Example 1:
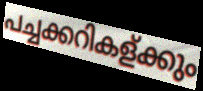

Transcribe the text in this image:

പച്ചക്കറികള്ക്കും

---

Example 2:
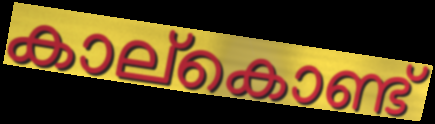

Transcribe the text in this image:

കാല്കൊണ്ട്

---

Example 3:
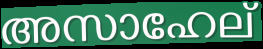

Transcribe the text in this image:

അസാഹേല്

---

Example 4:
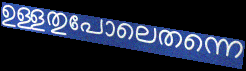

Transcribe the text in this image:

ഉള്ളതുപോലെതന്നെ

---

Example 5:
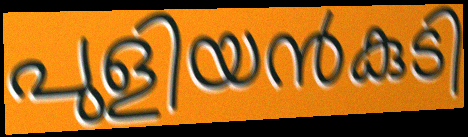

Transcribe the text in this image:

പുളിയൻകുടി